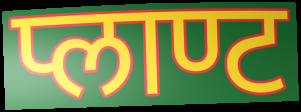
प्लाण्ट